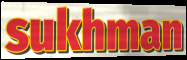
sukhman